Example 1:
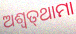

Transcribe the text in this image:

ଅଶ୍ବତ୍‌ଥାମା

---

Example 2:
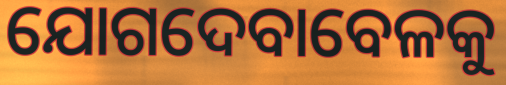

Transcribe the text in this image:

ଯୋଗଦେବାବେଳକୁ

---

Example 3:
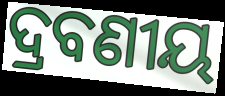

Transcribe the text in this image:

ଦ୍ରବଣୀୟ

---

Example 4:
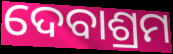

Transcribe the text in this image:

ଦେବାଶ୍ରମ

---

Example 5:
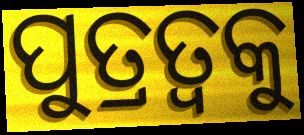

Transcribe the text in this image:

ପୁତ୍ରତ୍ଵକୁ